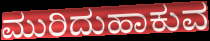
ಮುರಿದುಹಾಕುವ